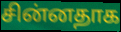
சின்னதாக